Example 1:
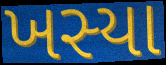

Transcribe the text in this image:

ખસ્યા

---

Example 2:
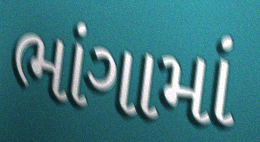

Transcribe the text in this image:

ભાંગામાં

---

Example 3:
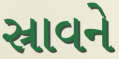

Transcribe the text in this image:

સ્રાવને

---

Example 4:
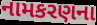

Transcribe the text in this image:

નામકરણના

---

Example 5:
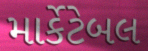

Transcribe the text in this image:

માર્કેટેબલ